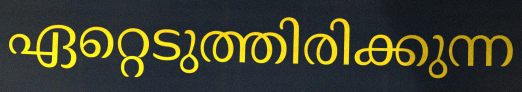
ഏറ്റെടുത്തിരിക്കുന്ന